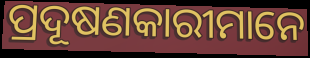
ପ୍ରଦୂଷଣକାରୀମାନେ